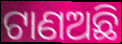
ଟାଣଅଛି